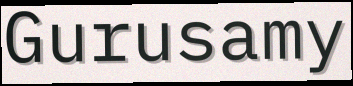
Gurusamy